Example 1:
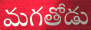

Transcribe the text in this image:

మగతోడు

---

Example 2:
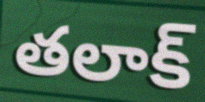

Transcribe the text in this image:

తలాక్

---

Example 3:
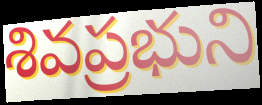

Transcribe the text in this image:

శివప్రభుని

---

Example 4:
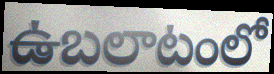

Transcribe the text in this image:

ఉబలాటంలో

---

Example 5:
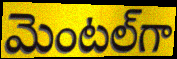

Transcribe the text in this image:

మెంటల్‌గా